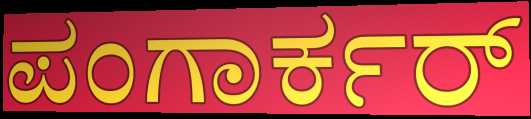
ಪಂಗಾರ್ಕರ್